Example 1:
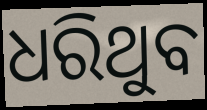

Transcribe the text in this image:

ଧରିଥୁବ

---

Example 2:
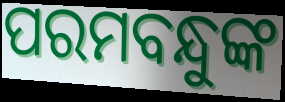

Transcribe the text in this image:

ପରମବନ୍ଧୁଙ୍କ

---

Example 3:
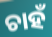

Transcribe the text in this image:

ଚାହଁ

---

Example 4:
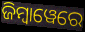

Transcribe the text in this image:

ଜିମ୍ୱାୱେରେ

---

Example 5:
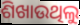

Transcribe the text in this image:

ଶିଖାଉଥିଲୁ